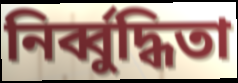
নির্ব্বুদ্ধিতা